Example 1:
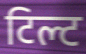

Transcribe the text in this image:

टिल्ट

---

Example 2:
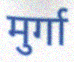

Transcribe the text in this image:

मुर्गा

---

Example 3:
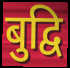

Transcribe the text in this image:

बुद्वि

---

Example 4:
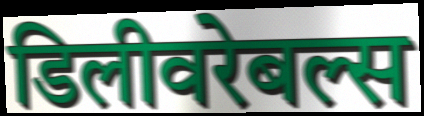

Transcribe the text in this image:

डिलीवरेबल्स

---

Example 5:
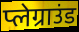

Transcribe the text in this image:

प्लेग्राउंड